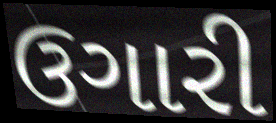
ઉગારી